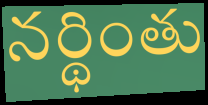
నర్థింతు